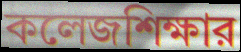
কলেজশিক্ষার